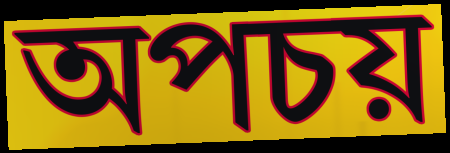
অপচয়